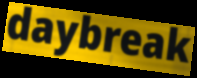
daybreak